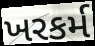
ખરકર્મ